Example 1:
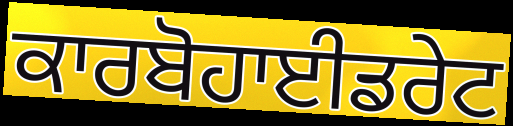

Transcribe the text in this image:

ਕਾਰਬੋਹਾਈਡਰੇਟ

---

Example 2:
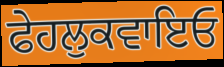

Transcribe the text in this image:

ਫੇਹਲੁਕਵਾਇਓ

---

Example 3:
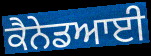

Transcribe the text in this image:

ਕੈਨੇਡਆਈ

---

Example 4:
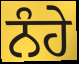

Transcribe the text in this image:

ਨੰਹੇ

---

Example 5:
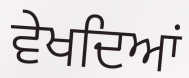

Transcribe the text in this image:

ਵੇਖਦਿਆਂ